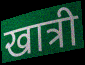
खात्री